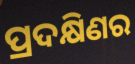
ପ୍ରଦକ୍ଷିଣର